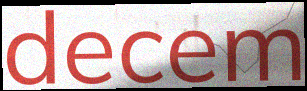
decem